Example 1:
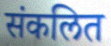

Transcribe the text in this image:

संकलित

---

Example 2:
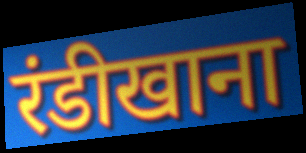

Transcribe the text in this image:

रंडीखाना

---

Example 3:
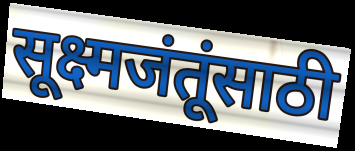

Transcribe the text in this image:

सूक्ष्मजंतूंसाठी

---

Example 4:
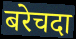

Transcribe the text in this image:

बरेचदा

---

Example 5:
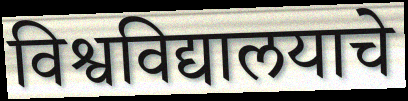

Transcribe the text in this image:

विश्वविद्यालयाचे